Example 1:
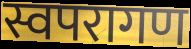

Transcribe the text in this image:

स्वपरागण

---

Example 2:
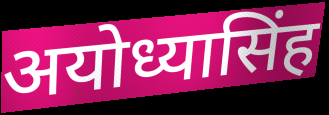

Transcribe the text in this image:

अयोध्यासिंह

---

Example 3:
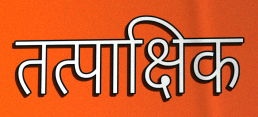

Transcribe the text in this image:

तत्पाक्षिक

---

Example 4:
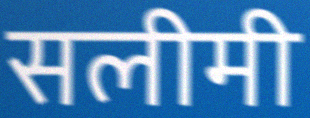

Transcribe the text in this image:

सलीमी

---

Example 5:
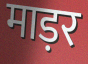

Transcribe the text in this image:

माड़र